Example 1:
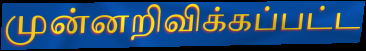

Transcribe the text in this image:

முன்னறிவிக்கப்பட்ட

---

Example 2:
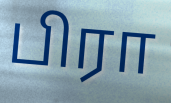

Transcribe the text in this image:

பிரா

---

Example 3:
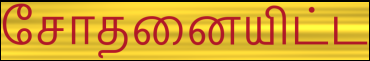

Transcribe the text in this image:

சோதனையிட்ட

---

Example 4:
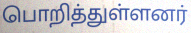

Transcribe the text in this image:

பொறித்துள்ளனர்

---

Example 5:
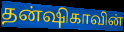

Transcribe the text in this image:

தன்ஷிகாவின்